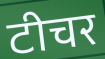
टीचर